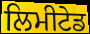
ਲਿਮੀਟੇਡ